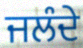
ਜਲੰਦੇ